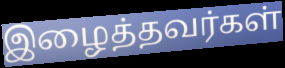
இழைத்தவர்கள்